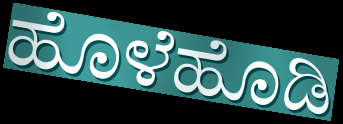
ಹೊಳೆಹೊಡಿ